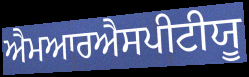
ਐਮਆਰਐਸਪੀਟੀਯੂ